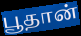
பூதான்